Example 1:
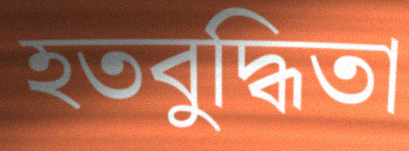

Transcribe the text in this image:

হতবুদ্ধিতা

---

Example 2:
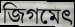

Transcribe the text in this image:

জিগমেৎ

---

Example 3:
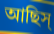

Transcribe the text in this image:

আছিস্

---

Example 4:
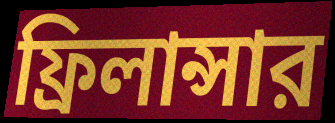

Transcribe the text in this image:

ফ্রিলান্সার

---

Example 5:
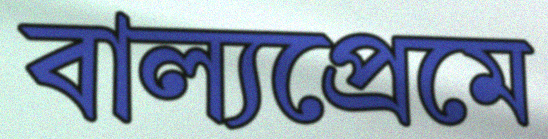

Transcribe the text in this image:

বাল্যপ্রেমে